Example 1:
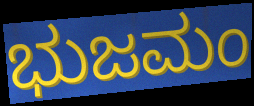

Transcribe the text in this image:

ಭುಜಮಂ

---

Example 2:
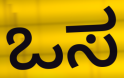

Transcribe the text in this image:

ಒಸ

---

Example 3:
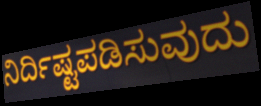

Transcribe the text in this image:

ನಿರ್ದಿಷ್ಟಪಡಿಸುವುದು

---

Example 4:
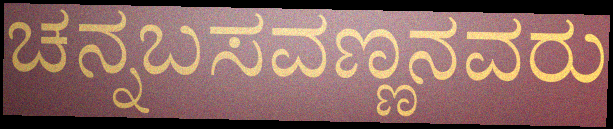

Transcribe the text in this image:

ಚನ್ನಬಸವಣ್ಣನವರು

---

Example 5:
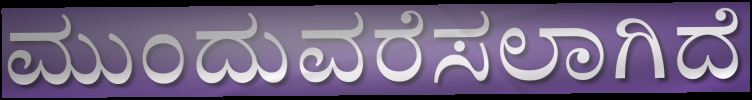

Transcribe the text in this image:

ಮುಂದುವರೆಸಲಾಗಿದೆ